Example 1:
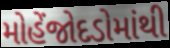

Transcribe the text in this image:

મોહેંજોદડોમાંથી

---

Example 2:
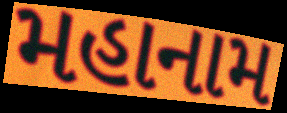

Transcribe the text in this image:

મહાનામ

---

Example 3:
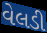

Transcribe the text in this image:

વેલડી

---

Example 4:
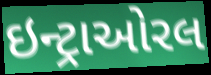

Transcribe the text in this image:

ઇન્ટ્રાઓરલ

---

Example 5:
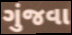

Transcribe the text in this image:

ગુંજવા